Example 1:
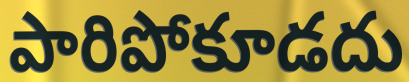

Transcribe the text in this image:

పారిపోకూడదు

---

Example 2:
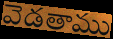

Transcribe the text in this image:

వెడతాము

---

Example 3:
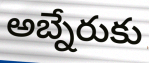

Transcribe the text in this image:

అబ్నేరుకు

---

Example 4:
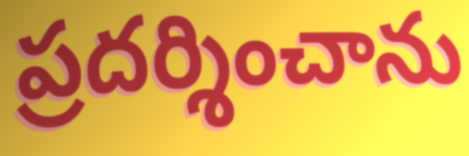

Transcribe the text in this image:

ప్రదర్శించాను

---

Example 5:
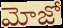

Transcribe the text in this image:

మోజో